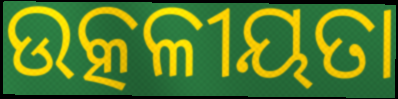
ଉତ୍କଳୀୟତା